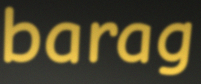
barag